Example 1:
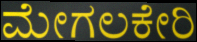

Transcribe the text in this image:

ಮೇಗಲಕೇರಿ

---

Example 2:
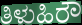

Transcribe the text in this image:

ತಿಳುಹಿರೌ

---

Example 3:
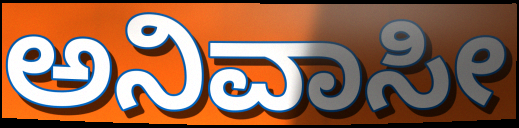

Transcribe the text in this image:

ಅನಿವಾಸೀ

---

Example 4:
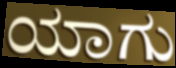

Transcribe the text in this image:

ಯಾಗು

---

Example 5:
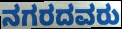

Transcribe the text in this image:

ನಗರದವರು